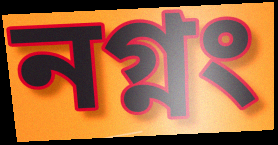
নগ্নং